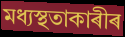
মধ্যস্থতাকাৰীৰ